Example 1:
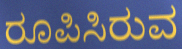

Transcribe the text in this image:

ರೂಪಿಸಿರುವ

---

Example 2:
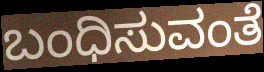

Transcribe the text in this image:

ಬಂಧಿಸುವಂತೆ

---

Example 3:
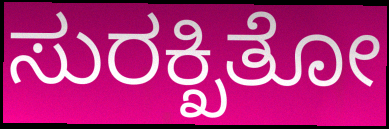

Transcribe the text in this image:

ಸುರಕ್ಖಿತೋ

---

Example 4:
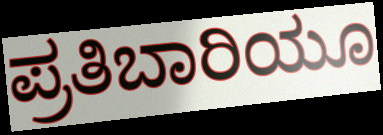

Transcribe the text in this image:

ಪ್ರತಿಬಾರಿಯೂ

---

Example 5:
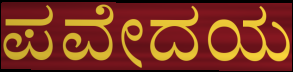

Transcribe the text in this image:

ಪವೇದಯ